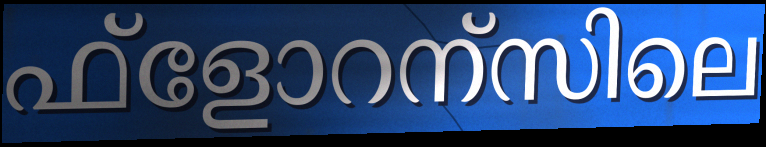
ഫ്ളോറന്സിലെ